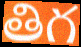
తిగ